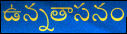
ఉన్నతాసనం